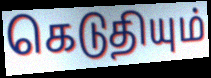
கெடுதியும்